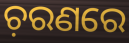
ଚ଼ରଣରେ